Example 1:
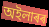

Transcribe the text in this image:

অইলাৰৰ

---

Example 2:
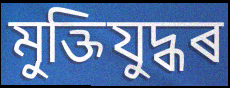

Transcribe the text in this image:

মুক্তিযুদ্ধৰ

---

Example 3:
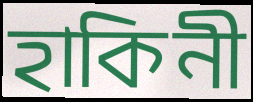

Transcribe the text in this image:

হাকিনী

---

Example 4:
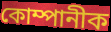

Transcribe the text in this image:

কোম্পানীক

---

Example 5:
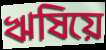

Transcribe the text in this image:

ঋষিয়ে